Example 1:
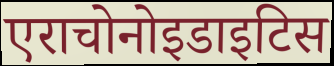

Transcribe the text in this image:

एराचोनोइडाइटिस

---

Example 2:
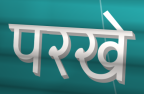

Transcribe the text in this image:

परखे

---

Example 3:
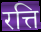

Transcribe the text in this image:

रत्ति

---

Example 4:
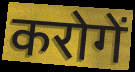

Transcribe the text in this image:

करोगें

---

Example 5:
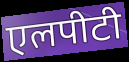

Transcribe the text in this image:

एलपीटी